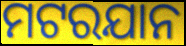
ମଟରଯାନ